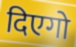
दिएगो